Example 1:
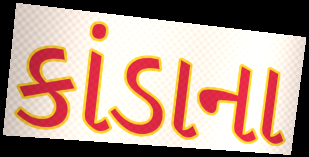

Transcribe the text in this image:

કાંડાના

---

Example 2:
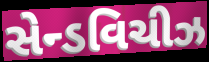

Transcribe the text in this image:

સેન્ડવિચીઝ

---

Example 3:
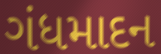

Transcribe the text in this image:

ગંધમાદન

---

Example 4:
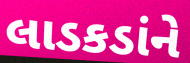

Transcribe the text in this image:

લાડકડાંને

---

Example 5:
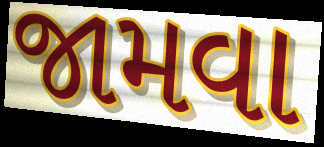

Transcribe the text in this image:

જામવા